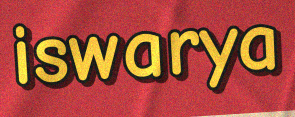
iswarya